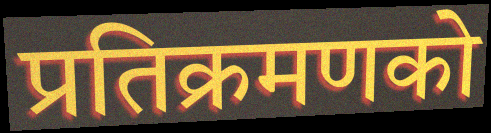
प्रतिक्रमणको